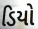
ડિયો